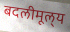
बदलीमूल्य